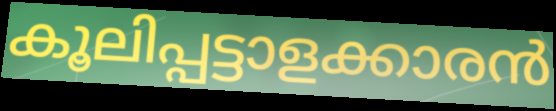
കൂലിപ്പട്ടാളക്കാരൻ